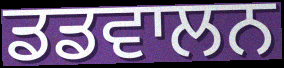
ਡਡਵਾਲਨ